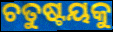
ଚତୁଷ୍ଟୟକୁ